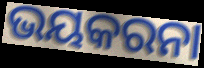
ଭୟକରନା